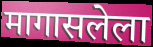
मागासलेला